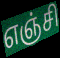
எஞ்சி